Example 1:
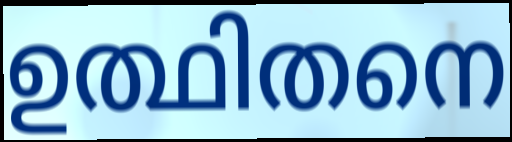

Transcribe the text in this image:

ഉത്ഥിതനെ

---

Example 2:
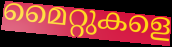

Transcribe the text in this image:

മൈറ്റുകളെ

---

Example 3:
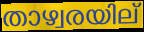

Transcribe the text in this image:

താഴ്വരയില്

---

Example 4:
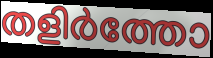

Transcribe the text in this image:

തളിർത്തോ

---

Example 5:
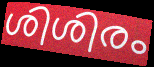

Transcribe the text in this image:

ശിശിരം